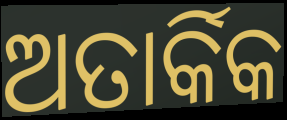
ଅତାର୍କିକ